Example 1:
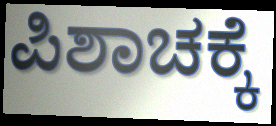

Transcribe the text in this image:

ಪಿಶಾಚಕ್ಕೆ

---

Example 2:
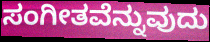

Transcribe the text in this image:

ಸಂಗೀತವೆನ್ನುವುದು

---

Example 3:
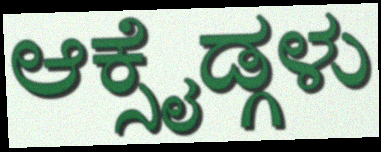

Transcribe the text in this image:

ಆಕ್ಸೈಡ್ಗಳು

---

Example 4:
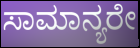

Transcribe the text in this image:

ಸಾಮಾನ್ಯರೇ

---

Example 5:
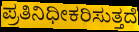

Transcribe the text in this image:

ಪ್ರತಿನಿಧೀಕರಿಸುತ್ತದೆ